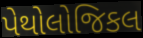
પેથોલોજિકલ